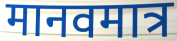
मानवमात्र